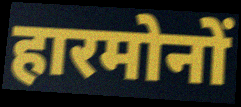
हारमोनों